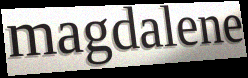
magdalene